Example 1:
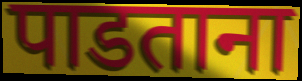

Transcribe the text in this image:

पाडताना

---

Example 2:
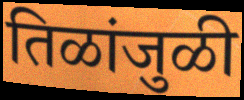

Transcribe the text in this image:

तिळांजुळी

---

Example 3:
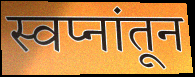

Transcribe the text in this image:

स्वप्नांतून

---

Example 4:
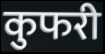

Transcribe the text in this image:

कुफरी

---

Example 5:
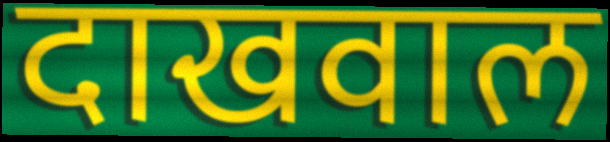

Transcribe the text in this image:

दाखवाल